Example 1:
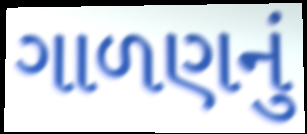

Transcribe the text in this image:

ગાળણનું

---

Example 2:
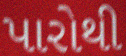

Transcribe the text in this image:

પારોથી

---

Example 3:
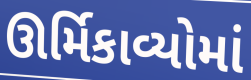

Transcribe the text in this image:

ઊર્મિકાવ્યોમાં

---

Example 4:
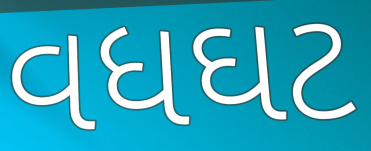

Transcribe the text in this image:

વધઘટ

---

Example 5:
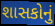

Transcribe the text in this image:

શાસકોનું